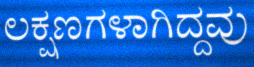
ಲಕ್ಷಣಗಳಾಗಿದ್ದವು